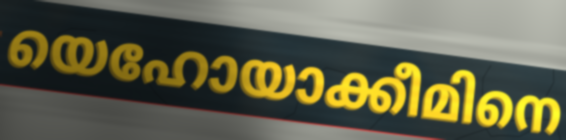
യെഹോയാക്കീമിനെ